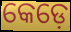
କେଡ଼େ